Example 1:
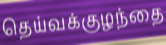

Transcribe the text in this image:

தெய்வக்குழந்தை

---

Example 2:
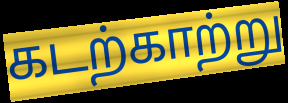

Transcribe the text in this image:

கடற்காற்று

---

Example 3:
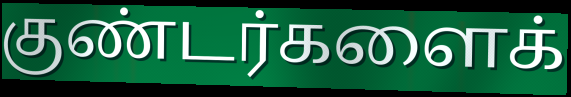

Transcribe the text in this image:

குண்டர்களைக்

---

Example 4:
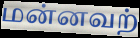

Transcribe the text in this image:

மன்னவற்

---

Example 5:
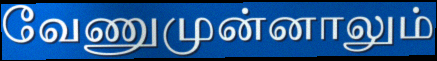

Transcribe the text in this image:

வேணுமுன்னாலும்